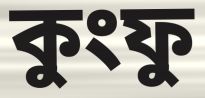
কুংফু